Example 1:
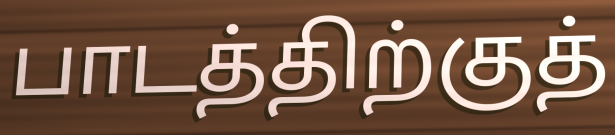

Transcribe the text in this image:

பாடத்திற்குத்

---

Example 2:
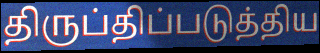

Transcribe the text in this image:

திருப்திப்படுத்திய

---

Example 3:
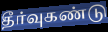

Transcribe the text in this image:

தீர்வுகண்டு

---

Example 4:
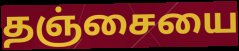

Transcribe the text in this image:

தஞ்சையை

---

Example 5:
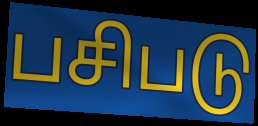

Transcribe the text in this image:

பசிபடு